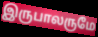
இருபாலருமே